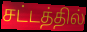
சட்டத்தில்